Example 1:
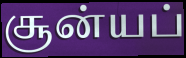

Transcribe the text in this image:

சூன்யப்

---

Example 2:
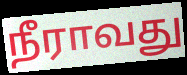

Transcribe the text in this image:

நீராவது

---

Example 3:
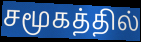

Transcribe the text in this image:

சமூகத்தில்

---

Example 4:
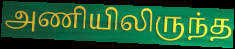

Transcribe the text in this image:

அணியிலிருந்த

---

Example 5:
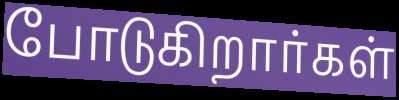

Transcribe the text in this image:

போடுகிறார்கள்